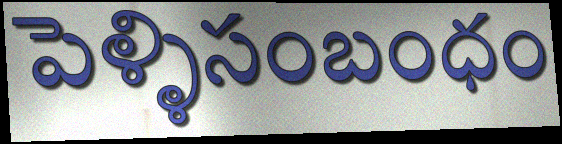
పెళ్ళిసంబంధం